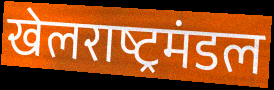
खेलराष्ट्रमंडल